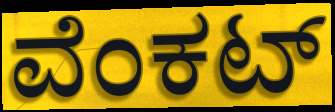
ವೆಂಕಟ್